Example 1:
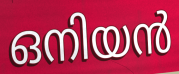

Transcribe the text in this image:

ഒനിയൻ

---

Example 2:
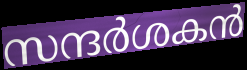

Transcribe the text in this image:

സന്ദർശകൻ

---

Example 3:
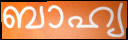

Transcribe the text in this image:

ബാഹ്യ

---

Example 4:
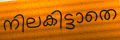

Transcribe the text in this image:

നിലകിട്ടാതെ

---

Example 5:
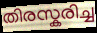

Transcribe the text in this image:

തിരസ്കരിച്ച